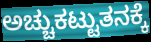
ಅಚ್ಚುಕಟ್ಟುತನಕ್ಕೆ